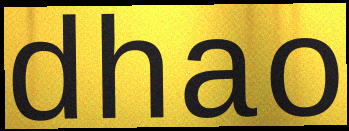
dhao